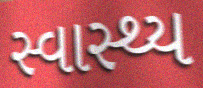
સ્વાસ્થ્ય